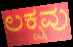
ಲಕ್ಷವು